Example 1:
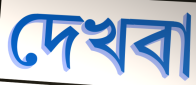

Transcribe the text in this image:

দেখবা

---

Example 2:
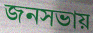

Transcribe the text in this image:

জনসভায়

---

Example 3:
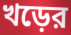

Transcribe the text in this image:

খড়ের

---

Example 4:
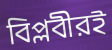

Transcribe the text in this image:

বিপ্লবীরই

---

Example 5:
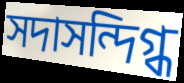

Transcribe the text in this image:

সদাসন্দিগ্ধ